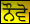
ਨੌਵੋ